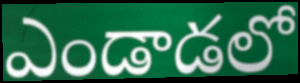
ఎండాడలో